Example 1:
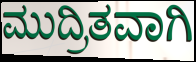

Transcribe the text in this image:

ಮುದ್ರಿತವಾಗಿ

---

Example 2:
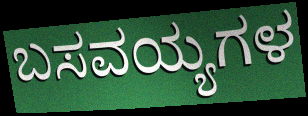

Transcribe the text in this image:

ಬಸವಯ್ಯಗಳ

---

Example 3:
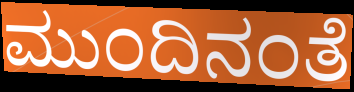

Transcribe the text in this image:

ಮುಂದಿನಂತೆ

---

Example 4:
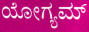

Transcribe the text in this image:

ಯೋಗ್ಯಮ್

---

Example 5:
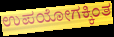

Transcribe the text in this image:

ಉಪಯೋಗಕ್ಕಿಂತ